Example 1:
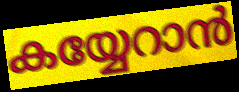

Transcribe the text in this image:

കയ്യേറാൻ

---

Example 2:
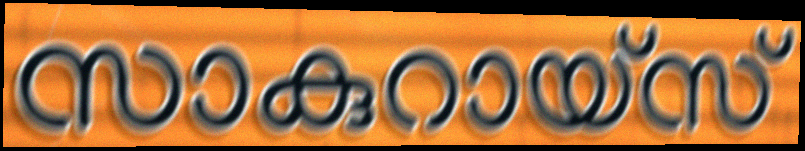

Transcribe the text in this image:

സാകുറായ്സ്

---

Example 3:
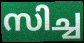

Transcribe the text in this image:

സിച്ച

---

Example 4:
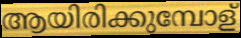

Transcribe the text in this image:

ആയിരിക്കുമ്പോള്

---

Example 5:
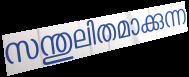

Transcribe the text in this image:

സന്തുലിതമാക്കുന്ന